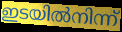
ഇടയിൽനിന്ന്